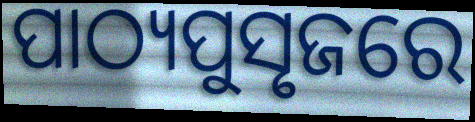
ପାଠ୍ୟପୁସୃଜରେ